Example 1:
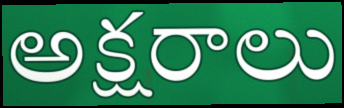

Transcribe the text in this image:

అక్షరాలు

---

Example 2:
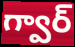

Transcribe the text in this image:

గ్వార్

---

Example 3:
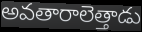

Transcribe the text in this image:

అవతారాలెత్తాడు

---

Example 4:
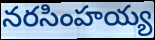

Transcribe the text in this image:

నరసింహయ్య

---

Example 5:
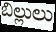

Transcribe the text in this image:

బిల్లులు